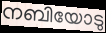
നബിയോടു